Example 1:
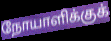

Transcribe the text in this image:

நோயாளிக்குக்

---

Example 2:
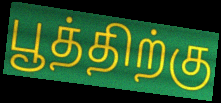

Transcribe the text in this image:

பூத்திற்கு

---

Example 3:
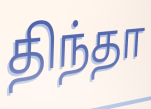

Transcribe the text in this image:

திந்தா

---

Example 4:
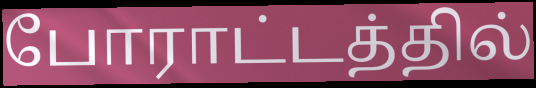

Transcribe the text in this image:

போராட்டத்தில்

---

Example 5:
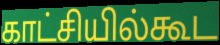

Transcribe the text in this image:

காட்சியில்கூட